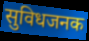
सुविधजनक